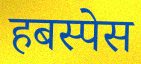
हबस्पेस